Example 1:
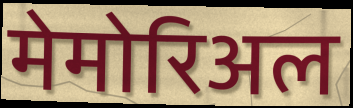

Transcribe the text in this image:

मेमोरिअल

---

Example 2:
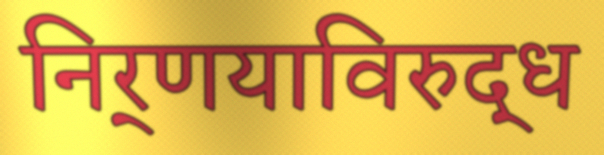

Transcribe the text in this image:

निर्णयाविरुद्ध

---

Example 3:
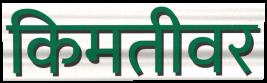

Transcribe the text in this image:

किमतीवर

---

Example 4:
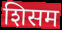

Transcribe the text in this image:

शिसम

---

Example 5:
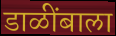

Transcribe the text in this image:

डाळींबाला